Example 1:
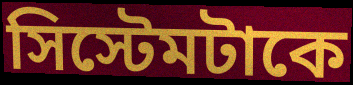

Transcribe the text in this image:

সিস্টেমটাকে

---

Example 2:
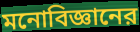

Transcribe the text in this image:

মনোবিজ্ঞানের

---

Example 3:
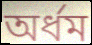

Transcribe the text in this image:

অর্ধম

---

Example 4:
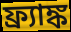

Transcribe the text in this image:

ফ্র্যাঙ্ক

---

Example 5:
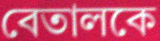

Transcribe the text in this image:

বেতালকে